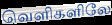
வெளிகளிலே